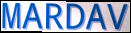
MARDAV